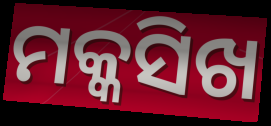
ମକ୍କସିଖ